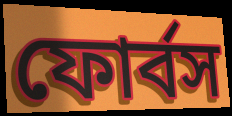
ফোর্বস